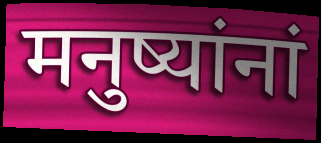
मनुष्यांनां